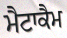
ਮੈਟਾਕੈਮ